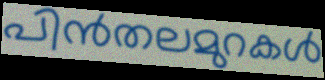
പിൻതലമുറകൾ